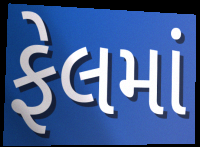
ફેલમાં